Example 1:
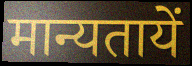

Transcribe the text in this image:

मान्यतायें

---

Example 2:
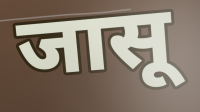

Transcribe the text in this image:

जासू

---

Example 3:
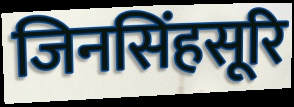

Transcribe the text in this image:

जिनसिंहसूरि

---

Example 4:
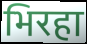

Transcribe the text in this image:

भिरहा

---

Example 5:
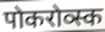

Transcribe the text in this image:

पोकरोव्स्क